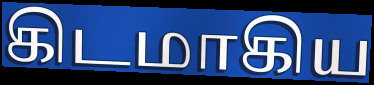
கிடமாகிய